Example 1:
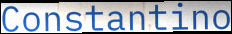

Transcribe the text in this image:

Constantino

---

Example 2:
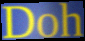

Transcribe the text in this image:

Doh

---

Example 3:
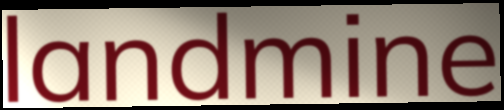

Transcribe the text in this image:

landmine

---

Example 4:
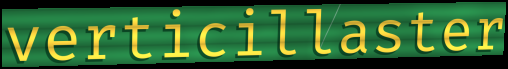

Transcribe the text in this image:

verticillaster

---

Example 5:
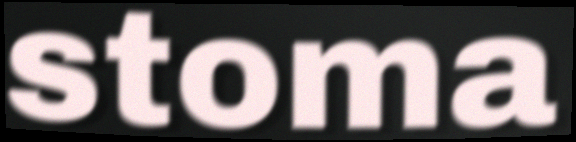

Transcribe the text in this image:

stoma